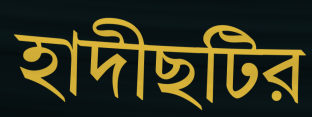
হাদীছটির